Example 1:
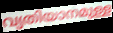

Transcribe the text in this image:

വ്യതിയാനമുള്ള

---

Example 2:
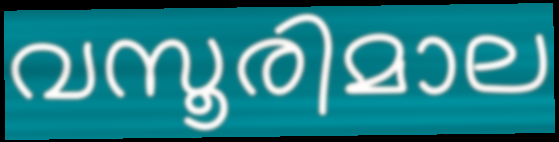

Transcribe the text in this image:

വസൂരിമാല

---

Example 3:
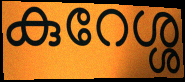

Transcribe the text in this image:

കുറേശ്ശ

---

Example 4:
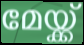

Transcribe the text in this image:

മേയ്ക്ക്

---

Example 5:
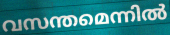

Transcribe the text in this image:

വസന്തമെന്നിൽ